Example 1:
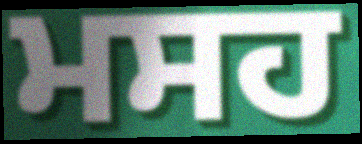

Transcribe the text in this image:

ਮਸਹ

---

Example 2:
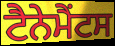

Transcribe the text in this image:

ਟੈਨੇਮੈਂਟਸ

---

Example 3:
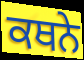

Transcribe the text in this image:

ਕਥਨੇ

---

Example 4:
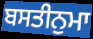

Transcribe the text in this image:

ਬਸਤੀਨੁਮਾ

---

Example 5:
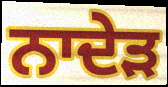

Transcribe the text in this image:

ਨਾਦੇੜ